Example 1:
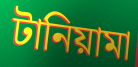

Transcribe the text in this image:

টানিয়ামা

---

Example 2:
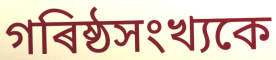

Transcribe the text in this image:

গৰিষ্ঠসংখ্যকে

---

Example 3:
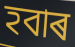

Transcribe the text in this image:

হবাৰ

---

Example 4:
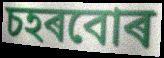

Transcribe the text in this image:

চহৰবোৰ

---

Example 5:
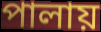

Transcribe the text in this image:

পালায়